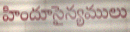
హిందూసైన్యములు